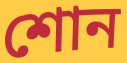
শোন